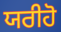
ਯਰੀਹੋ